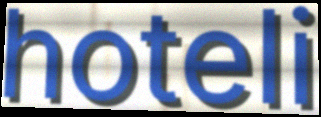
hoteli